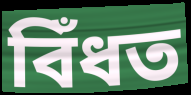
বিঁধত